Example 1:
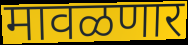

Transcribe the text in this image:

मावळणार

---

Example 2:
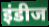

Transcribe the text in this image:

इंडीज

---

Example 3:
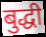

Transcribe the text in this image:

बुद्धी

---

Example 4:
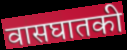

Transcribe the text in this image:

वासघातकी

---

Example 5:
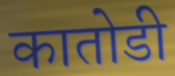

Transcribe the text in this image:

कातोडी